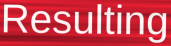
Resulting